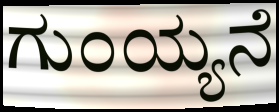
ಗುಂಯ್ಯನೆ